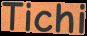
Tichi